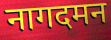
नागदमन